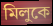
মিলুকে